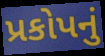
પ્રકોપનું